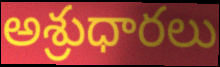
అశ్రుధారలు